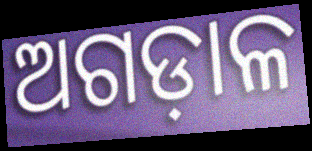
ଅଗଡ଼ାଳ